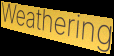
Weathering